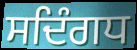
ਸਦਿੰਗਧ